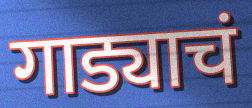
गाड्याचं